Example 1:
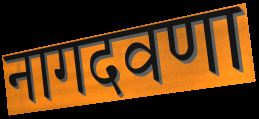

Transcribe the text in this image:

नागदवणा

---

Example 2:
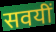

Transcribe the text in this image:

सवयीं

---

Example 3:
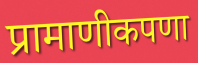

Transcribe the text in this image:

प्रामाणीकपणा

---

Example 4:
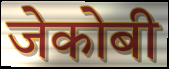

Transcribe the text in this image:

जेकोबी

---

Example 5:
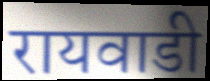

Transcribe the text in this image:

रायवाडी